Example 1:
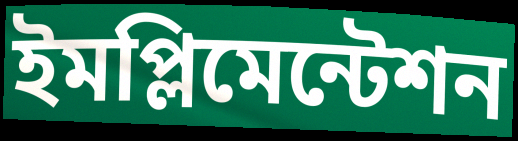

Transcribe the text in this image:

ইমপ্লিমেন্টেশন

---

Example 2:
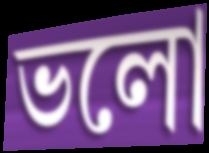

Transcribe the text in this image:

ভলো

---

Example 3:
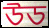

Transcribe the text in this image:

উড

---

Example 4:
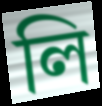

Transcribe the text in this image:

লি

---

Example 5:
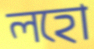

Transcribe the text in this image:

লহো